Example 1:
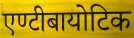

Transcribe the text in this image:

एण्टीबायोटिक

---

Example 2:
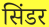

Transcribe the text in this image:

सिंडर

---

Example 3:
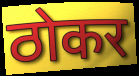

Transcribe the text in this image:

ठोकर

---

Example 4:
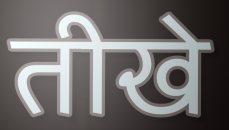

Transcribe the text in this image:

तीखे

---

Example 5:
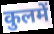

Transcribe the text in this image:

कुलमें